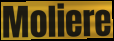
Moliere